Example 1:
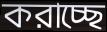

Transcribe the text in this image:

করাচ্ছে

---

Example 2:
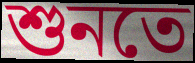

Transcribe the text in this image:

শুনতে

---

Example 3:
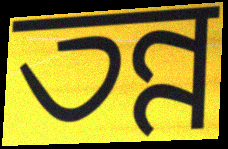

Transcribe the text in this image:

তন্ন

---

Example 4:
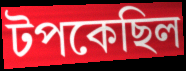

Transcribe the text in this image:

টপকেছিল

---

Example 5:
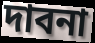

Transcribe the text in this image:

দাবনা